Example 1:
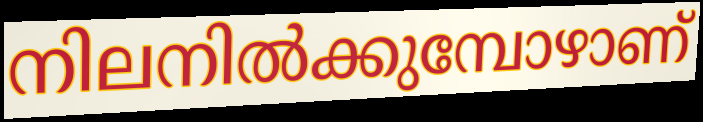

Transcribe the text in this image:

നിലനിൽക്കുമ്പോഴാണ്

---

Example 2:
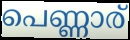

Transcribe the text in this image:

പെണ്ണാര്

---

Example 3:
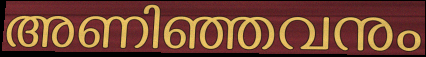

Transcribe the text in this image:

അണിഞ്ഞവനും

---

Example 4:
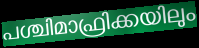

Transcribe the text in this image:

പശ്ചിമാഫ്രിക്കയിലും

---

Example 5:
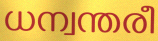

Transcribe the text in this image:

ധന്വന്തരീ